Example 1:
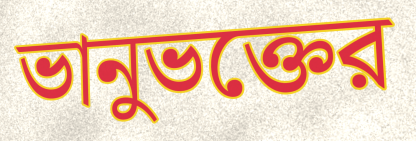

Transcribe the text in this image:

ভানুভক্তের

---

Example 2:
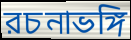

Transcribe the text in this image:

রচনাভঙ্গি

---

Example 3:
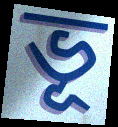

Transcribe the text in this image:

ভূ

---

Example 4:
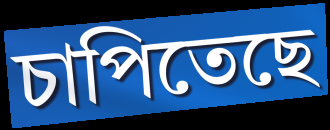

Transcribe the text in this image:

চাপিতেছে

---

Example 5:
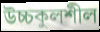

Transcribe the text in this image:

উচ্চকুলশীল